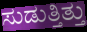
ಸುಡುತ್ತಿತ್ತು